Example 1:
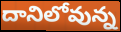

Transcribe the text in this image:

దానిలోవున్న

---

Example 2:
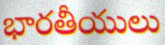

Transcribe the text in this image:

భారతీయులు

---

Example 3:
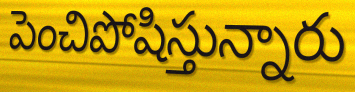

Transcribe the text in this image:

పెంచిపోషిస్తున్నారు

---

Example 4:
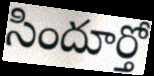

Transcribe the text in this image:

సిందూర్తో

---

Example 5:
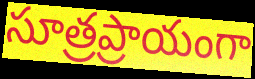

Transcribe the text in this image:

సూత్రప్రాయంగా